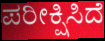
ಪರೀಕ್ಷಿಸಿದೆ